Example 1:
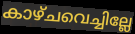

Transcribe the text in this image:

കാഴ്ചവെച്ചില്ലേ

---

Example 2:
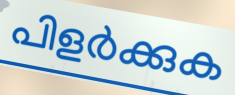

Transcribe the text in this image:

പിളർക്കുക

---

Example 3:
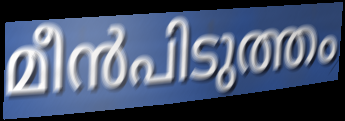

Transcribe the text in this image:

മീൻപിടുത്തം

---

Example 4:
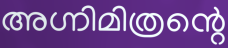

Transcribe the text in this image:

അഗ്നിമിത്രന്റെ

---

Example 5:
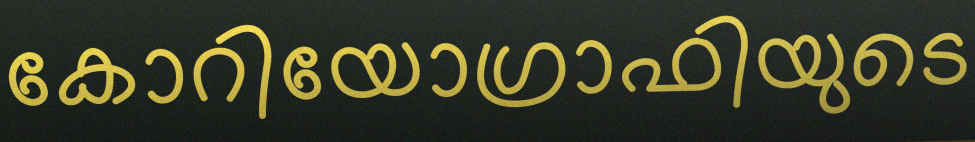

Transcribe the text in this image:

കോറിയോഗ്രാഫിയുടെ